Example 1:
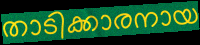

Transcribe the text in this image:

താടിക്കാരനായ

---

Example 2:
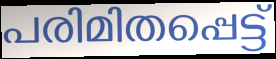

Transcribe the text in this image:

പരിമിതപ്പെട്ട്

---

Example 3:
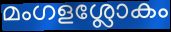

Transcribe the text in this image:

മംഗളശ്ലോകം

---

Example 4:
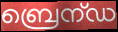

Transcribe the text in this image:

ബ്രെന്ഡ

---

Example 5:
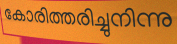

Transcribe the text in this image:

കോരിത്തരിച്ചുനിന്നു